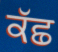
ਕੱਛ